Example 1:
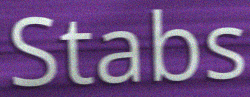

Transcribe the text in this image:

Stabs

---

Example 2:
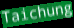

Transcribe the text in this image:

Taichung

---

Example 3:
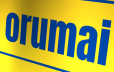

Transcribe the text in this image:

orumai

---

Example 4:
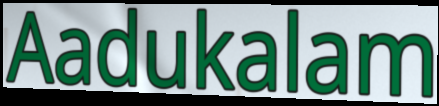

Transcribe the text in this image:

Aadukalam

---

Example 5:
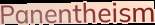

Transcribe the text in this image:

Panentheism